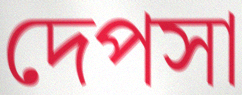
দেপসা